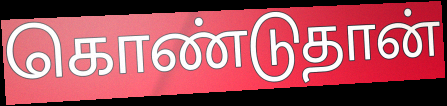
கொண்டுதான்